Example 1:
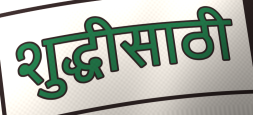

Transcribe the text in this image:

शुद्धीसाठी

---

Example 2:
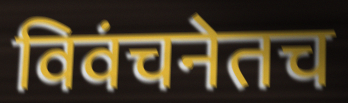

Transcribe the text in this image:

विवंचनेतच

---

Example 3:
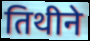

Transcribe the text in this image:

तिथीने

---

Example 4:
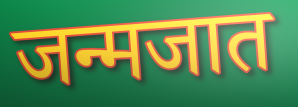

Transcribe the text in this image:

जन्मजात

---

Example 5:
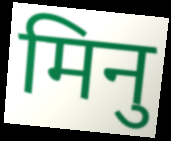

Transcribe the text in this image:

मिनु